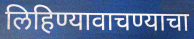
लिहिण्यावाचण्याचा